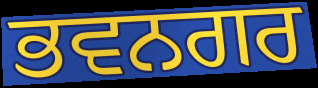
ਭਵਨਗਰ